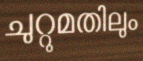
ചുറ്റുമതിലും